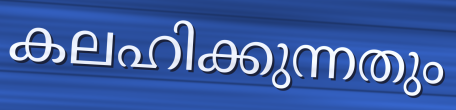
കലഹിക്കുന്നതും